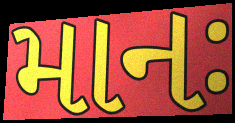
માનઃ